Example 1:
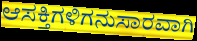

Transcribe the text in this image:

ಆಸಕ್ತಿಗಳಿಗನುಸಾರವಾಗಿ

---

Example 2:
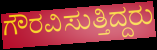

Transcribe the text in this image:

ಗೌರವಿಸುತ್ತಿದ್ದರು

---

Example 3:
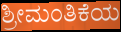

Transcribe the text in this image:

ಶ್ರೀಮಂತಿಕೆಯ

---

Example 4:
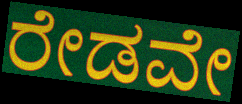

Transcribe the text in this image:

ರೇಡವೇ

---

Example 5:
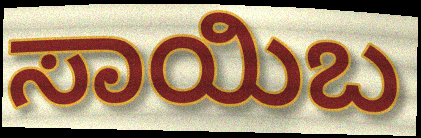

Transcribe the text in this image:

ಸಾಯಿಬ